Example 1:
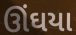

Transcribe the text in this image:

ઊંઘયા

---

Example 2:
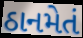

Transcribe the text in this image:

ઠાનમેતં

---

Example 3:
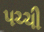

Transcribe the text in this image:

પચ્ચી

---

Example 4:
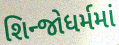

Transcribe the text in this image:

શિન્જોધર્મમાં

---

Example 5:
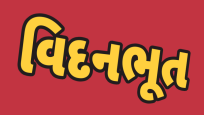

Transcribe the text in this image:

વિદનભૂત